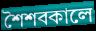
শৈশবকালে